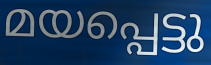
മയപ്പെട്ടു